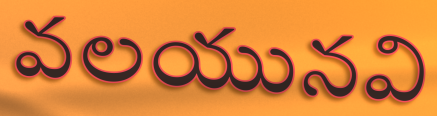
వలయునవి